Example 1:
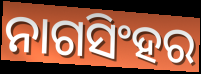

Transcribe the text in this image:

ନାଗସିଂହର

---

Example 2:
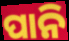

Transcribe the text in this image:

ପାନି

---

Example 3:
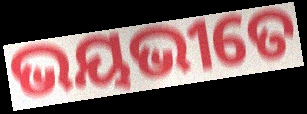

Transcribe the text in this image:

ଭୟଭୀତେ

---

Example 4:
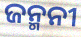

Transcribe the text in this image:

ଜନ୍ମନୀ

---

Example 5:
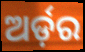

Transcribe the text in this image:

ଅର୍ଡ଼ର